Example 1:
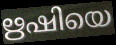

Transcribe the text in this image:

ഋഷിയെ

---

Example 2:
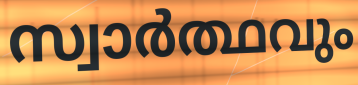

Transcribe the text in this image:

സ്വാർത്ഥവും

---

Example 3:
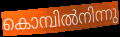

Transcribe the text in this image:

കൊമ്പിൽനിന്നു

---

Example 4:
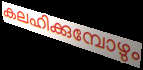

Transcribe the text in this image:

കലഹിക്കുമ്പോഴും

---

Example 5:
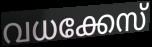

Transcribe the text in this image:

വധക്കേസ്